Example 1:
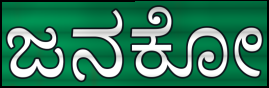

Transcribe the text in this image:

ಜನಕೋ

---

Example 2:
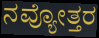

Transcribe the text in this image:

ನವ್ಯೋತ್ತರ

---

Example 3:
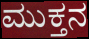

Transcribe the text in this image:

ಮುಕ್ತನ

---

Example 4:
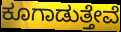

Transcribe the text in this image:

ಕೂಗಾಡುತ್ತೇವೆ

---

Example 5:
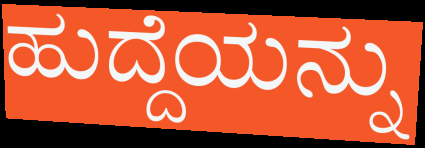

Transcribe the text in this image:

ಹುದ್ದೆಯನ್ನು